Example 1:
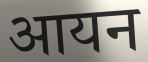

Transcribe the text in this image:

आयन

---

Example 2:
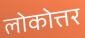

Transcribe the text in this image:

लोकोत्तर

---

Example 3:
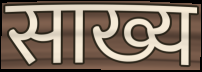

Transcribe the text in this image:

साख्य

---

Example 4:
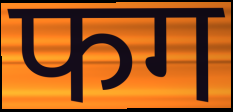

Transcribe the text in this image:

फग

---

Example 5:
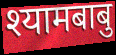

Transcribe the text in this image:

श्यामबाबु